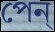
পেন্